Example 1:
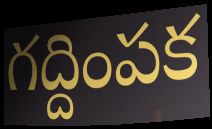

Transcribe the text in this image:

గద్దింపక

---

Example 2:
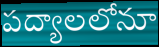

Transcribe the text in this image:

పద్యాలలోనూ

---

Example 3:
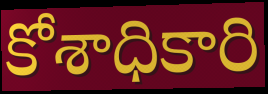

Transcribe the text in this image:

కోశాధికారి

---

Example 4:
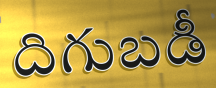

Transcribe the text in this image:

దిగుబడీ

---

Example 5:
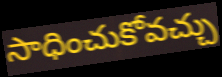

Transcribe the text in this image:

సాధించుకోవచ్చు